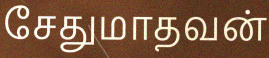
சேதுமாதவன்